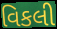
વિકલી